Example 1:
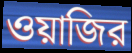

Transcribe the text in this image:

ওয়াজির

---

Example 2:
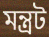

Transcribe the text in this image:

মন্ত্রট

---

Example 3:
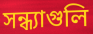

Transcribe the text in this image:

সন্ধ্যাগুলি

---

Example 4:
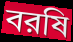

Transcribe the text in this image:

বরষি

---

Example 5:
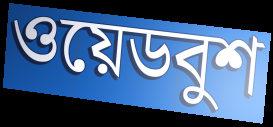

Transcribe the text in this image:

ওয়েডবুশ